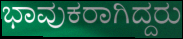
ಭಾವುಕರಾಗಿದ್ದರು